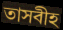
তাসবীহ